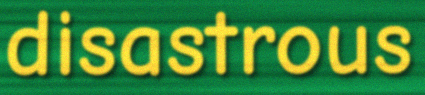
disastrous